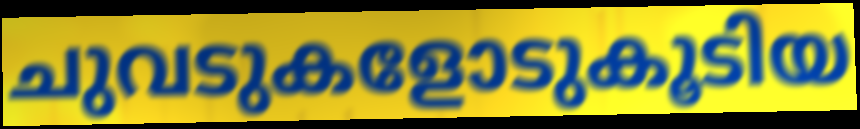
ചുവടുകളോടുകൂടിയ